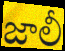
జాలీ